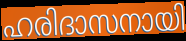
ഹരിദാസനായി